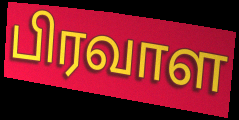
பிரவாள